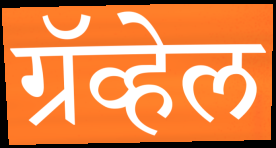
ग्रॅव्हेल